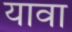
यावा